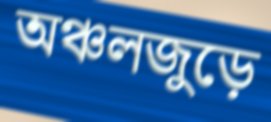
অঞ্চলজুড়ে